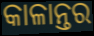
କାଳାନ୍ତର